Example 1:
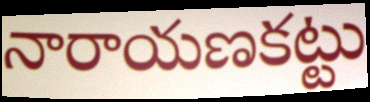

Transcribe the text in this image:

నారాయణకట్టు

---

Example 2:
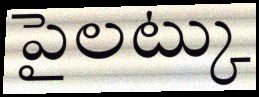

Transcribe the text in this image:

పైలట్కు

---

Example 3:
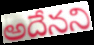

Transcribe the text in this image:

అదేనని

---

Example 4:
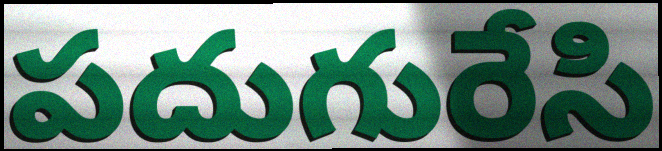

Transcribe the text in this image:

పదుగురేసి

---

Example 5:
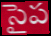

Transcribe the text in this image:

సైప